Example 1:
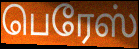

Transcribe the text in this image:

பெரேஸ்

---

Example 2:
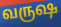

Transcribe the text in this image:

வருஷ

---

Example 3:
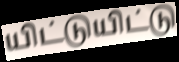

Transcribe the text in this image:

யிட்டுயிட்டு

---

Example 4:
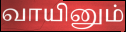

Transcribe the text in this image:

வாயினும்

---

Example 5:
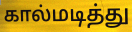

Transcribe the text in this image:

கால்மடித்து